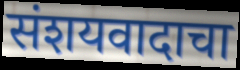
संशयवादाचा